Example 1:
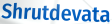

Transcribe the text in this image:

Shrutdevata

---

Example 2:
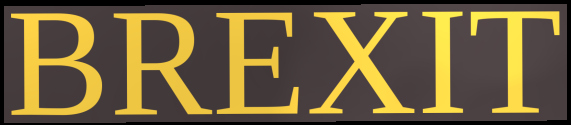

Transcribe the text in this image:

BREXIT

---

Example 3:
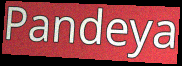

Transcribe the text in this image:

Pandeya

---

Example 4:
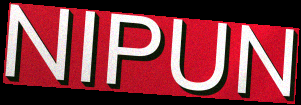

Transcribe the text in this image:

NIPUN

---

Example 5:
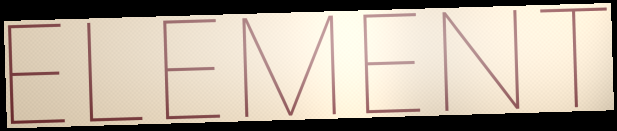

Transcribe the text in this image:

ELEMENT